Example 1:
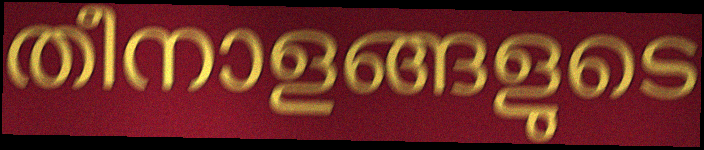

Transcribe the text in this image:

തീനാളങ്ങളുടെ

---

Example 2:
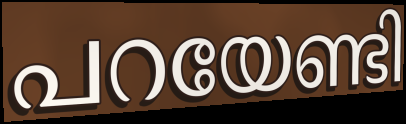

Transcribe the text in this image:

പറയേണ്ടി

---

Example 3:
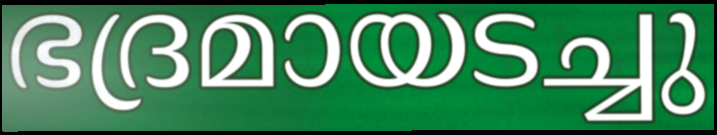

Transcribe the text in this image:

ഭദ്രമായടച്ചു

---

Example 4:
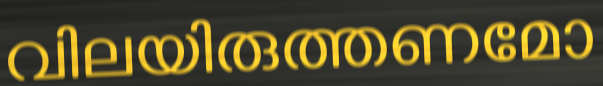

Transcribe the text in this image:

വിലയിരുത്തണമോ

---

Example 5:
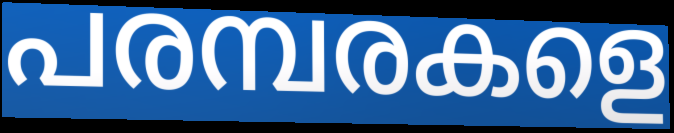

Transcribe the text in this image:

പരമ്പരകളെ